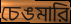
চেঙমারি